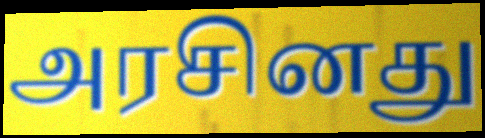
அரசினது